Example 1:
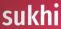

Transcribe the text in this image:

sukhi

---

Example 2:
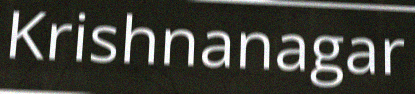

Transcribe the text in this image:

Krishnanagar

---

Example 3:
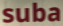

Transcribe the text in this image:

suba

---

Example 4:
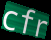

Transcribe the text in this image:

cfr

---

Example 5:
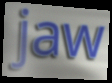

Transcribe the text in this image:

jaw